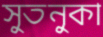
সুতনুকা